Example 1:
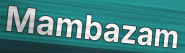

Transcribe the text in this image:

Mambazam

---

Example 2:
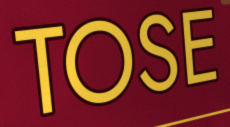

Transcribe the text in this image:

TOSE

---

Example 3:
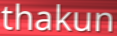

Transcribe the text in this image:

thakun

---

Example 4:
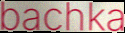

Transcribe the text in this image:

bachka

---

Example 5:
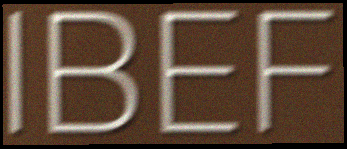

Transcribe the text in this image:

IBEF